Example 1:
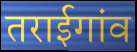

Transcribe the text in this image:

तराईगांव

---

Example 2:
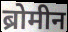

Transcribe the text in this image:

ब्रोमीन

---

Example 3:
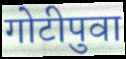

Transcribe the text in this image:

गोटीपुवा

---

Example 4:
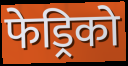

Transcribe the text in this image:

फेड्रिको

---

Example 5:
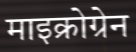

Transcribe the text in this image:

माइक्रोग्रेन